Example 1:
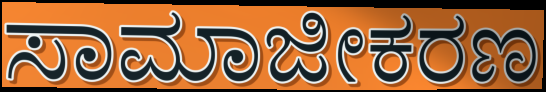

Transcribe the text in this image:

ಸಾಮಾಜೀಕರಣ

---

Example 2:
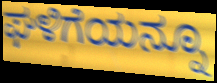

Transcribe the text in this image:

ಘಳಿಗೆಯನ್ನೂ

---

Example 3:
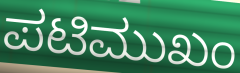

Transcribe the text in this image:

ಪಟಿಮುಖಂ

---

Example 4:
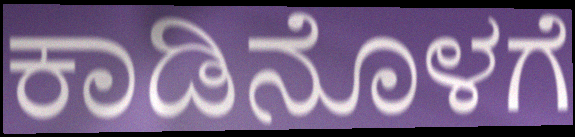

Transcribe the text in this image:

ಕಾಡಿನೊಳಗೆ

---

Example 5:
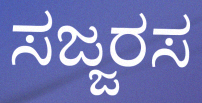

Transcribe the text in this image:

ಸಜ್ಜರಸ